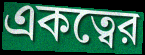
একত্বের